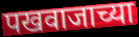
पखवाजाच्या